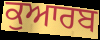
ਕੁਆਰਬ